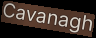
Cavanagh